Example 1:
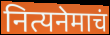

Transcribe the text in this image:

नित्यनेमाचं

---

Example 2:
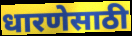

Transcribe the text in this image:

धारणेसाठी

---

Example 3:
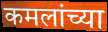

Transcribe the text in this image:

कमलांच्या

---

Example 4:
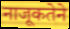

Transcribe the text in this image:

नाजूकतेने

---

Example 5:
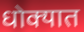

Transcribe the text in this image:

धोक्‍यात